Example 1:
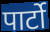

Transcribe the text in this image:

पार्टो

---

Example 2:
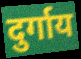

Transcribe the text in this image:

दुर्गाय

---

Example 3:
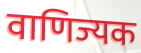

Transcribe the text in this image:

वाणिज्यक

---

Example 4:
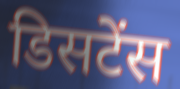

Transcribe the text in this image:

डिसटेंस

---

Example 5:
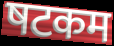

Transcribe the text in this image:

षटकम